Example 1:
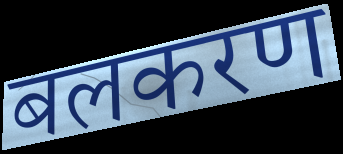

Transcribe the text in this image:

बलकरण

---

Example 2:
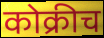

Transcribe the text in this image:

कोक्रीच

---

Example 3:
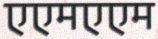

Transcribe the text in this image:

एएमएएम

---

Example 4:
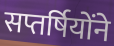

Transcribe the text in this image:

सप्तर्षियोंने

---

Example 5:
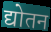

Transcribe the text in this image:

द्योतन